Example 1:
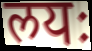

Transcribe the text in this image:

लयः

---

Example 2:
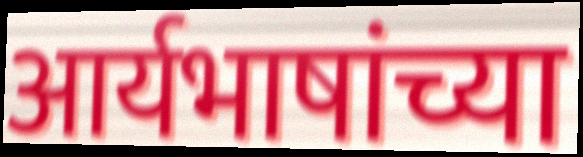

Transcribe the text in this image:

आर्यभाषांच्या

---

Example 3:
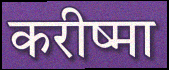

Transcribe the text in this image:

करीष्मा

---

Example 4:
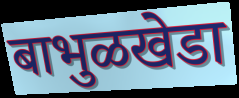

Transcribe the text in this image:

बाभुळखेडा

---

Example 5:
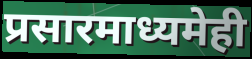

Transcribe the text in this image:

प्रसारमाध्यमेही